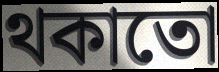
থকাতো